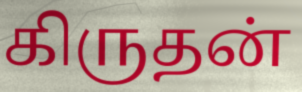
கிருதன்